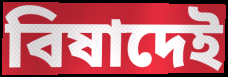
বিষাদেই